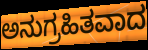
ಅನುಗ್ರಹಿತವಾದ